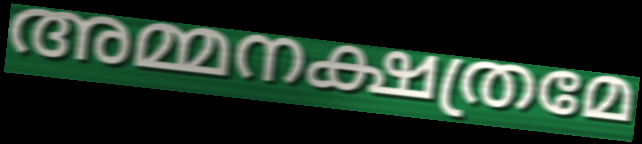
അമ്മനക്ഷത്രമേ